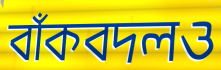
বাঁকবদলও